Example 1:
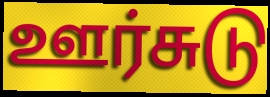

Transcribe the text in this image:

ஊர்சுடு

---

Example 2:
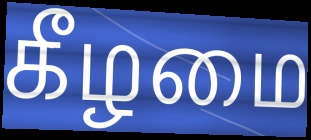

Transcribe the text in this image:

கீழமை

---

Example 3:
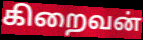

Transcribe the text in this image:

கிறைவன்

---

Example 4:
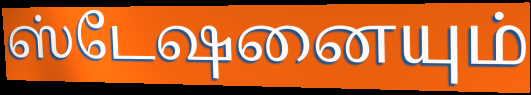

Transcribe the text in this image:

ஸ்டேஷனையும்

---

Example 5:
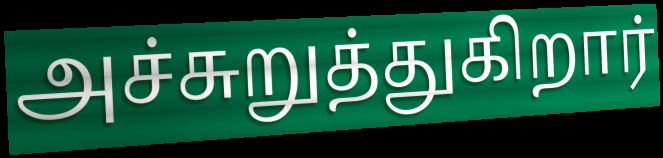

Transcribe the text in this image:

அச்சுறுத்துகிறார்